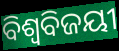
ବିଶ୍ଵବିଜୟୀ